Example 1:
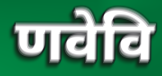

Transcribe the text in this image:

णवेवि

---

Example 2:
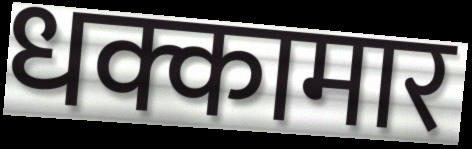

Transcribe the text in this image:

धक्कामार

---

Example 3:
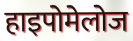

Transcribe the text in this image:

हाइपोमेलोज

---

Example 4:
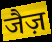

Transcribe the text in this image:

जैज़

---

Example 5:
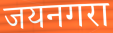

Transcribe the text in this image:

जयनगरा